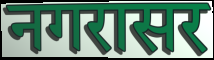
नगरासर